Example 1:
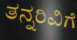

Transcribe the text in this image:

ತನ್ನರಿವಿಗೆ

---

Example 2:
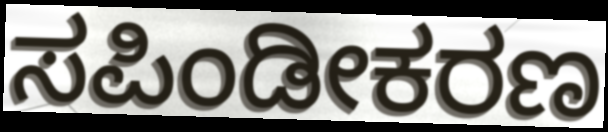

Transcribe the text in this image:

ಸಪಿಂಡೀಕರಣ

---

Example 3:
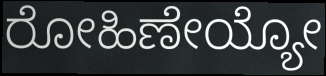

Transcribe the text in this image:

ರೋಹಿಣೇಯ್ಯೋ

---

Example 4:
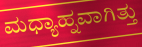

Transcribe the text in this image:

ಮಧ್ಯಾಹ್ನವಾಗಿತ್ತು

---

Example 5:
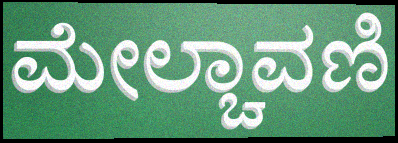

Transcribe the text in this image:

ಮೇಲ್ಚಾವಣಿ